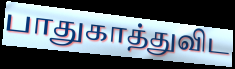
பாதுகாத்துவிட